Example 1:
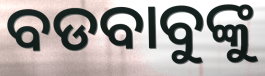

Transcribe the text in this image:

ବଡବାବୁଙ୍କୁ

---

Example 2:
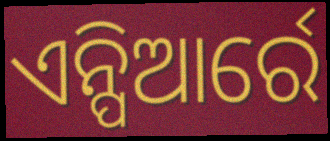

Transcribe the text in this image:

ଏନ୍ପିଆର୍ରେ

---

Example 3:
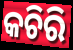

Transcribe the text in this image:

କଚିରି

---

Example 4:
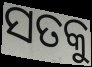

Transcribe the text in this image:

ସତକୁ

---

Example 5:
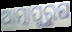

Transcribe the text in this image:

ଆତ୍ମାପୁରୁଷ